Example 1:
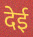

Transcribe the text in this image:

देई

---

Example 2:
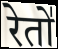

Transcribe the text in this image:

रेतो॑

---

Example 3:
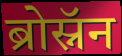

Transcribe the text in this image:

ब्रोस्नॅन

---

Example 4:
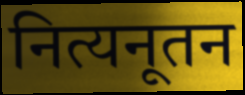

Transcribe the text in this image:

नित्यनूतन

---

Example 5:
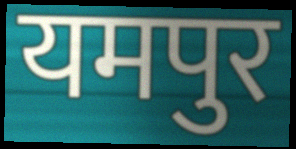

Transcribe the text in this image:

यमपुर